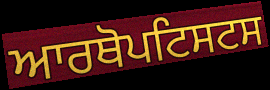
ਆਰਥੋਪਟਿਸਟਸ